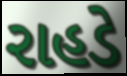
રાહડે